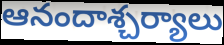
ఆనందాశ్చర్యాలు